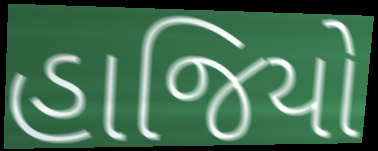
હાજિયો